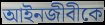
আইনজীবীকে